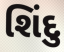
શિંદુ